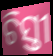
ଚିସ୍ତୀ